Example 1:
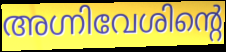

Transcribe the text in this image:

അഗ്നിവേശിന്റെ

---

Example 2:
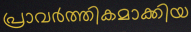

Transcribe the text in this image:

പ്രാവർത്തികമാക്കിയ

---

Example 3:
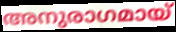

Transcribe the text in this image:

അനുരാഗമായ്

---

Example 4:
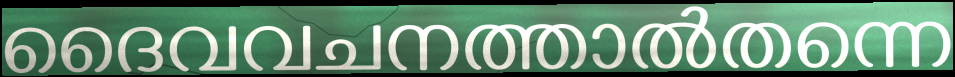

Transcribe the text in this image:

ദൈവവചനത്താൽതന്നെ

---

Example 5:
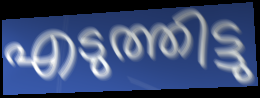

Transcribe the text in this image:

എടുത്തിട്ടു